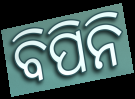
ବିପିନି